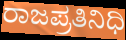
ರಾಜಪ್ರತಿನಿಧಿ